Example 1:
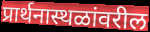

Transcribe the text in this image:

प्रार्थनास्थळांवरील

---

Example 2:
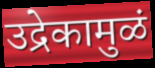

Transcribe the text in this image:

उद्रेकामुळं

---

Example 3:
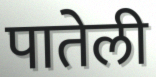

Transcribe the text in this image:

पातेली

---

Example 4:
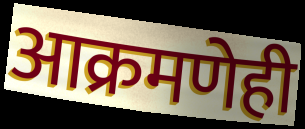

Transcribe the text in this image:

आक्रमणेही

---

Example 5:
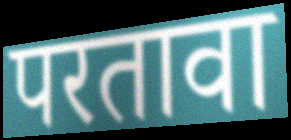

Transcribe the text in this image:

परतावा